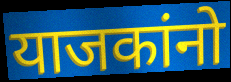
याजकांनो